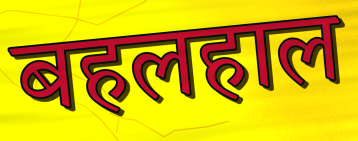
बहलहाल